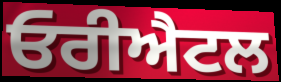
ਓਰੀਐਟਲ